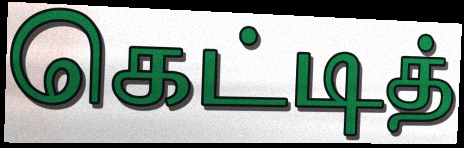
கெட்டித்